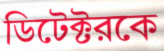
ডিটেক্টরকে